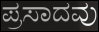
ಪ್ರಸಾದವು